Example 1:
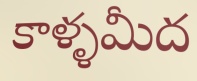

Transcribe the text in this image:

కాళ్ళమీద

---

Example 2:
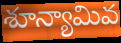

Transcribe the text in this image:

శూన్యామివ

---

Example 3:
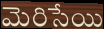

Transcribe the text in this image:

మెరిసేయి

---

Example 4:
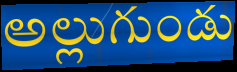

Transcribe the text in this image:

అల్లుగుండు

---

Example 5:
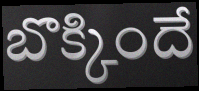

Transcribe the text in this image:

బొక్కిందే